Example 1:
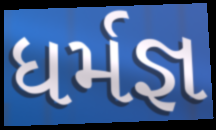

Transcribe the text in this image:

ધર્મજ્ઞ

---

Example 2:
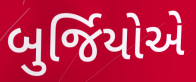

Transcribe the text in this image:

બુર્જિયોએ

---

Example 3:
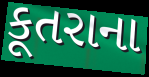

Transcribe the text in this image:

કૂતરાના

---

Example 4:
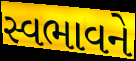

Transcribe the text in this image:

સ્વભાવને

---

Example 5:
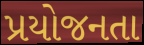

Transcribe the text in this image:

પ્રયોજનતા